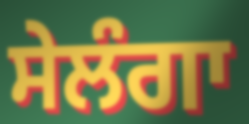
ਸੇਲੰਗਾ